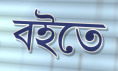
বইতে